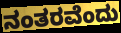
ನಂತರವೆಂದು